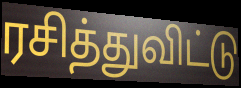
ரசித்துவிட்டு